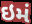
ઇમં